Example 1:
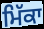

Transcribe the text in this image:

ਮਿੱਕਾ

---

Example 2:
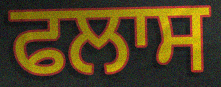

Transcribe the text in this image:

ਫਲਾਸ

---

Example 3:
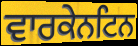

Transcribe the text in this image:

ਵਾਰਕੇਨਟਿਨ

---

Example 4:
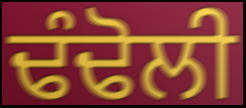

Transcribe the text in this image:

ਢੰਢੋਲੀ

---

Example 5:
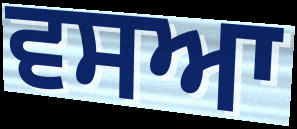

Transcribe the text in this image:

ਵਸਆ